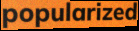
popularized